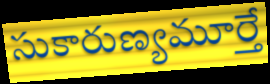
సుకారుణ్యమూర్తే